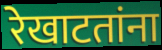
रेखाटतांना